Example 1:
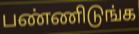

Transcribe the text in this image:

பண்ணிடுங்க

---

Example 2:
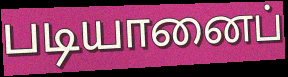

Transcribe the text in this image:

படியானைப்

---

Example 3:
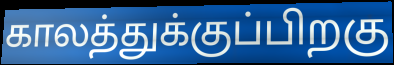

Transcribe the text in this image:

காலத்துக்குப்பிறகு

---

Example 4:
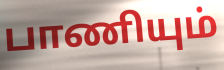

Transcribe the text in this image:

பாணியும்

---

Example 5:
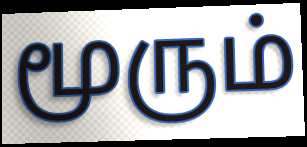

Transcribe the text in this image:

மூரும்